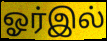
ஓர்இல்